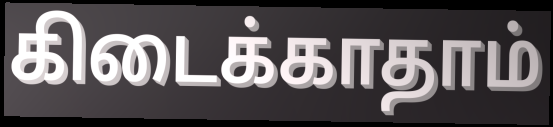
கிடைக்காதாம்